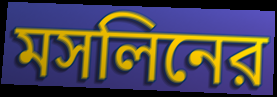
মসলিনের